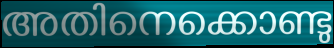
അതിനെക്കൊണ്ടു